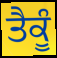
ਤੈਕੂੰ